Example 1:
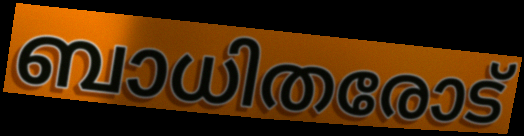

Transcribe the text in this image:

ബാധിതരോട്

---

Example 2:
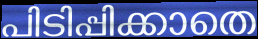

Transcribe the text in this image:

പിടിപ്പിക്കാതെ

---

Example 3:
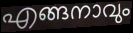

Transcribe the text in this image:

എങ്ങനാവും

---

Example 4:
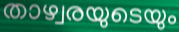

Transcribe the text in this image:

താഴ്വരയുടെയും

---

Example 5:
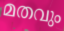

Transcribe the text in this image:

മതവും